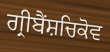
ਗ੍ਰੀਬੈਂਸ਼ਚਿਕੋਵ